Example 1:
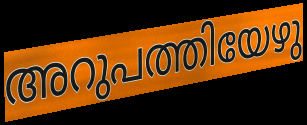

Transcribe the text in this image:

അറുപത്തിയേഴു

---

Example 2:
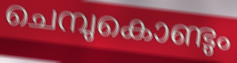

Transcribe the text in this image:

ചെമ്പുകൊണ്ടും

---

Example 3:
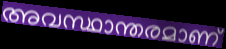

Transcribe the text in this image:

അവസ്ഥാന്തരമാണ്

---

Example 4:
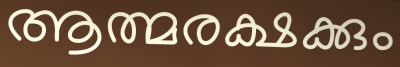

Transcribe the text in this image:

ആത്മരക്ഷക്കും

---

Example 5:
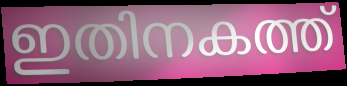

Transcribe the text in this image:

ഇതിനകത്ത്